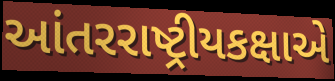
આંતરરાષ્ટ્રીયકક્ષાએ